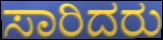
ಸಾರಿದರು